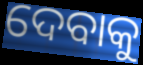
ଦେବାକୁ